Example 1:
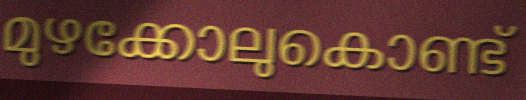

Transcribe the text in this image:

മുഴക്കോലുകൊണ്ട്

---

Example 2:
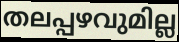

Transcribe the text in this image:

തലപ്പഴവുമില്ല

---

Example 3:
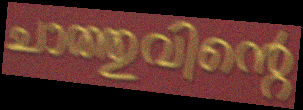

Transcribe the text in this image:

ചാത്തുവിന്റെ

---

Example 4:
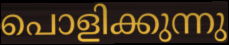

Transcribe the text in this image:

പൊളിക്കുന്നു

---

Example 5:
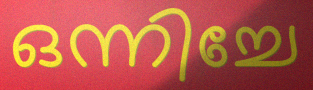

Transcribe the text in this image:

ഒന്നിച്ചേ